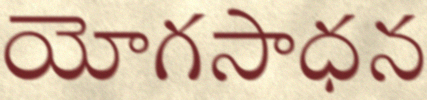
యోగసాధన